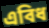
এবিধ